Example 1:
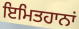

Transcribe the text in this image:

ਇਮਿਤਹਾਨਾਂ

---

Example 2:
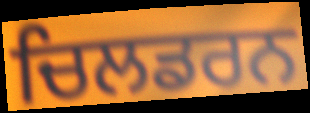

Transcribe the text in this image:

ਚਿਲਡਰਨ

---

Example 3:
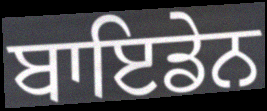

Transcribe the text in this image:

ਬਾਇਡੇਨ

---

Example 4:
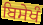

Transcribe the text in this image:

ਬਿਸੇਖੰ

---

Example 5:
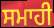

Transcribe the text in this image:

ਸਮਾਹੀ